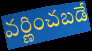
వర్ణించబడే